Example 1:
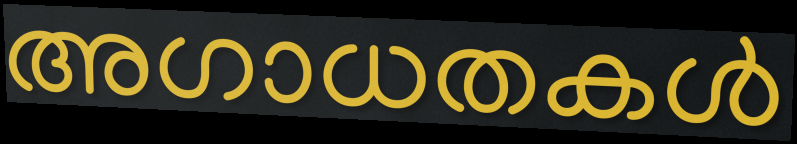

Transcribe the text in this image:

അഗാധതകൾ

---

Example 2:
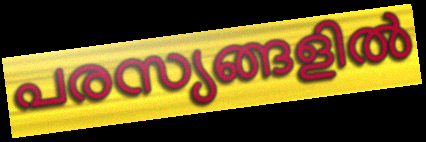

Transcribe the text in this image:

പരസ്യങ്ങളിൽ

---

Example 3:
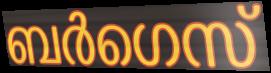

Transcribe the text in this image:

ബർഗെസ്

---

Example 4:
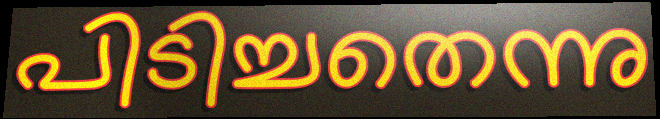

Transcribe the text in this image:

പിടിച്ചതെന്നു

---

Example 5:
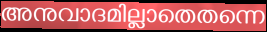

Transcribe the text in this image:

അനുവാദമില്ലാതെതന്നെ